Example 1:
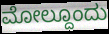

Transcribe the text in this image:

ಮೋಲ್ದೂಂದು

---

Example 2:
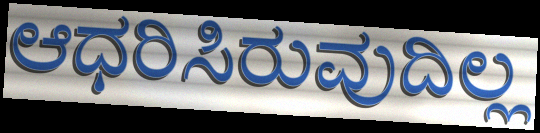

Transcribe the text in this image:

ಆಧರಿಸಿರುವುದಿಲ್ಲ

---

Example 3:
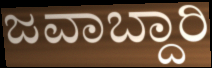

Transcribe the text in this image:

ಜವಾಬ್ದಾರಿ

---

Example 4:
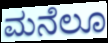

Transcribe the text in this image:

ಮನೆಲೂ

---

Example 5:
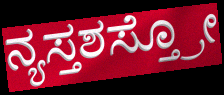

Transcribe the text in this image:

ನ್ಯಸ್ತಶಸ್ತ್ರೋ